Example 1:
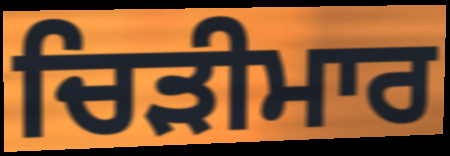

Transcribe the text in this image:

ਚਿੜੀਮਾਰ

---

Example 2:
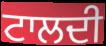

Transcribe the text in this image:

ਟਾਲਦੀ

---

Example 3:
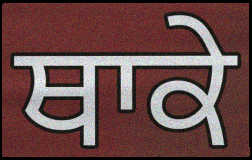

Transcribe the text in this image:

ਥਾਕੇ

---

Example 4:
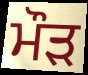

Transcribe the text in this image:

ਮੌਡ਼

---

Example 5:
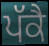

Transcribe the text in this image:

ਪੱਕੈ